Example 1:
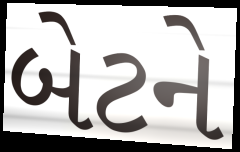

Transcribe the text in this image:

બેટને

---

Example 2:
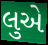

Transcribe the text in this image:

લુએ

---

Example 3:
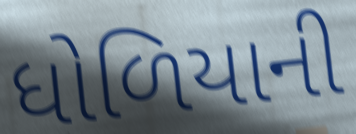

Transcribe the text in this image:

ધોળિયાની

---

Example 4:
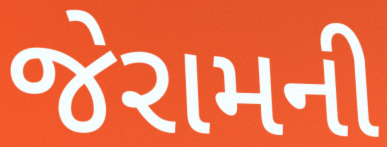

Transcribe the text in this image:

જેરામની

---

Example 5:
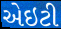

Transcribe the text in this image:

એઇટી